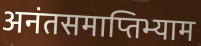
अनंतसमाप्तिभ्याम